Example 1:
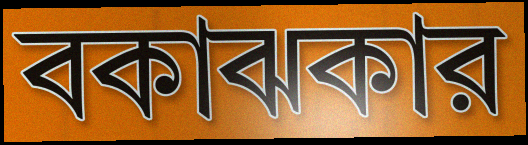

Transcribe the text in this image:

বকাঝকার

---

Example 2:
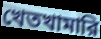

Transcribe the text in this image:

খেতখামারি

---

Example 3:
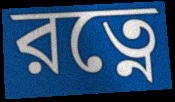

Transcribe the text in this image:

রত্নে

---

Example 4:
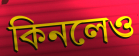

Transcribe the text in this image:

কিনলেও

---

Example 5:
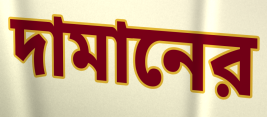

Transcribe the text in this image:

দামানের